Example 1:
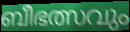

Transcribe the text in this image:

ബീഭത്സവും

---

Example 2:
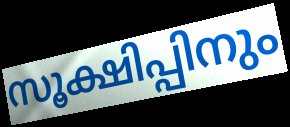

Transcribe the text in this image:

സൂക്ഷിപ്പിനും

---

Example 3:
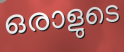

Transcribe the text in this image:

ഒരാളുടെ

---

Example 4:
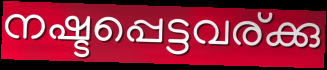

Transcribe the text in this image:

നഷ്ടപ്പെട്ടവര്ക്കു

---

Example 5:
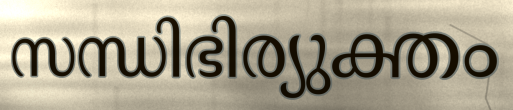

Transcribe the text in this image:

സന്ധിഭിര്യുക്തം